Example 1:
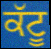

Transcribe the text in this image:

ਕੱਟੂ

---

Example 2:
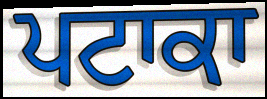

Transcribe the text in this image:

ਪਟਾਕਾ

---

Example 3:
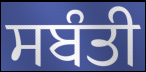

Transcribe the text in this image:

ਸਬੰਤੀ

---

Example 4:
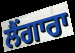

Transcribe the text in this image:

ਲੈਂਗਾਰਾ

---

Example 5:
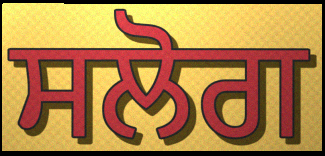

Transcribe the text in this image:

ਸਲੋਗ